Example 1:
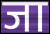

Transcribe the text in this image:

जा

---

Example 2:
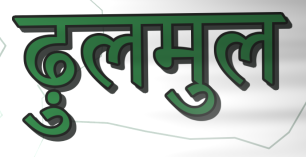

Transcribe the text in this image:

ढ़ुलमुल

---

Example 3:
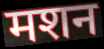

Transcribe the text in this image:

मशन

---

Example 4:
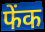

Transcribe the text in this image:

फेंक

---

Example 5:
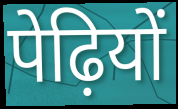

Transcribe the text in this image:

पेढ़ियों